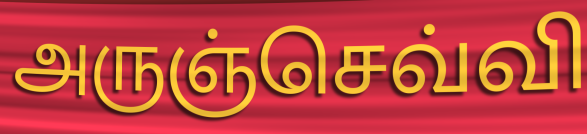
அருஞ்செவ்வி